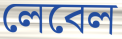
লেবেল